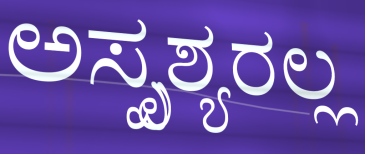
ಅಸ್ಪೃಶ್ಯರಲ್ಲ